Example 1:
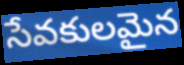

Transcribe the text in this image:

సేవకులమైన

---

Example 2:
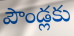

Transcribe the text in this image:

పౌండ్లకు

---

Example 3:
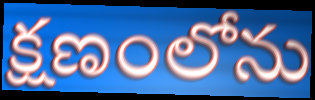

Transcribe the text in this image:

క్షణంలోను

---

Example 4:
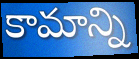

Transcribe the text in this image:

కామాన్ని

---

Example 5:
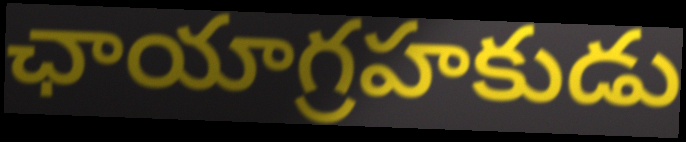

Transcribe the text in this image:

ఛాయాగ్రహకుడు